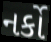
નર્કો